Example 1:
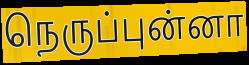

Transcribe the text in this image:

நெருப்புன்னா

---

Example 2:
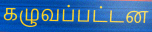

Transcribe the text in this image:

கழுவப்பட்டன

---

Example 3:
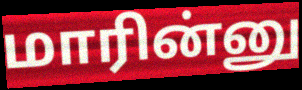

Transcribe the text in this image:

மாரின்னு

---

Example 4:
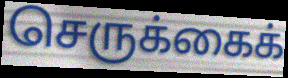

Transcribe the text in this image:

செருக்கைக்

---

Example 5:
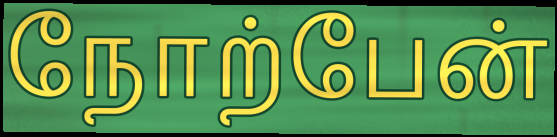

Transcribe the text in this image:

நோற்பேன்